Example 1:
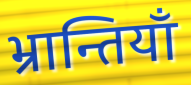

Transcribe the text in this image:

भ्रान्तियाँ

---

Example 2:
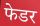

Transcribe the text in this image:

फेडर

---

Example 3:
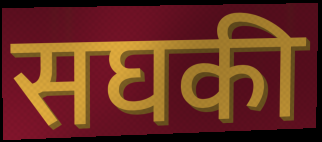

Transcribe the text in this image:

सघकी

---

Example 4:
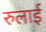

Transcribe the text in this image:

रुलाई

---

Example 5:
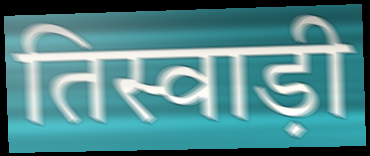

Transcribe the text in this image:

तिस्वाड़ी